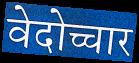
वेदोच्चार